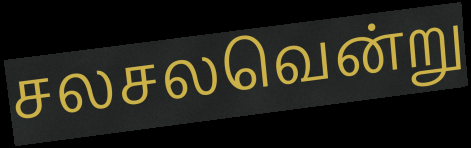
சலசலவென்று